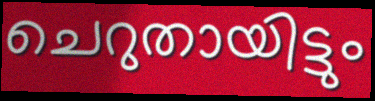
ചെറുതായിട്ടും